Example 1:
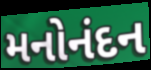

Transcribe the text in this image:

મનોનંદન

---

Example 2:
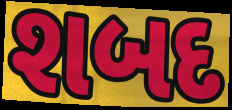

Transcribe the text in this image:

શબદ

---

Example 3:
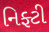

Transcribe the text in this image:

નિફ્ટી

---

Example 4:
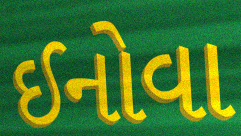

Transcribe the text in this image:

ઈનોવા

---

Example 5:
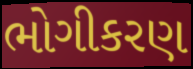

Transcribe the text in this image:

ભોગીકરણ